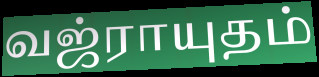
வஜ்ராயுதம்